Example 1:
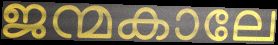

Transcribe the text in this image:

ജന്മകാലേ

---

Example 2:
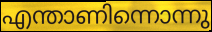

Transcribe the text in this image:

എന്താണിന്നൊന്നു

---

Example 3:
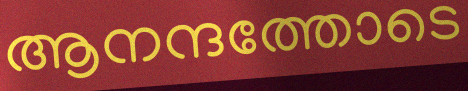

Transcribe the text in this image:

ആനന്ദത്തോടെ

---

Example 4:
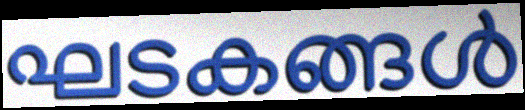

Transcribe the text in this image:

ഘടകങ്ങൾ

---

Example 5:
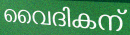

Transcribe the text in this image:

വൈദികന്